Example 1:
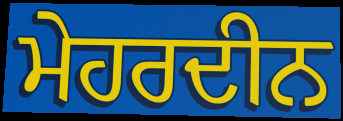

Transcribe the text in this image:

ਮੇਹਰਦੀਨ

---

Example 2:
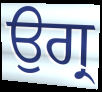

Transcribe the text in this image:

ਉਗ੍ਰ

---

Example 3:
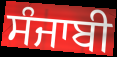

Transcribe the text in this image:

ਸੰਜਾਬੀ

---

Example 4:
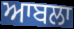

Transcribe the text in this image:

ਆਬਲਾ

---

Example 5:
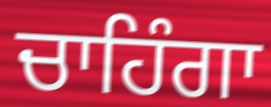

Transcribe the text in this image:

ਚਾਹਿੰਗਾ